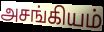
அசங்கியம்